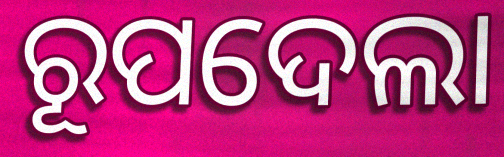
ରୂପଦେଲା